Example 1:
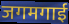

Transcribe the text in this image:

जगमगाई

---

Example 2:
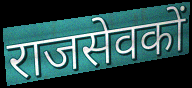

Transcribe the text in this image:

राजसेवकों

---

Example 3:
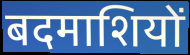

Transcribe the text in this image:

बदमाशियों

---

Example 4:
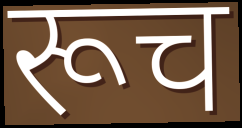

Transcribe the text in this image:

रूच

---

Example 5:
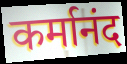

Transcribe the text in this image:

कर्मानंद